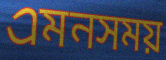
এমনসময়